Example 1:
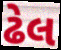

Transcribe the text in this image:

ઢેલ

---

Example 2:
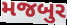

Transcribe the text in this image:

મજબુર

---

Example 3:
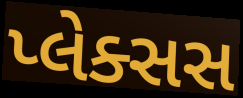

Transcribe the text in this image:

પ્લેક્સસ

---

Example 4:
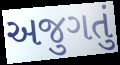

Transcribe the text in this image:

અજુગતું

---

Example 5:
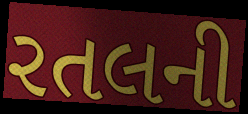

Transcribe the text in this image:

રતલની